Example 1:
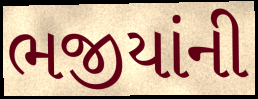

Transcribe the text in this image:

ભજીયાંની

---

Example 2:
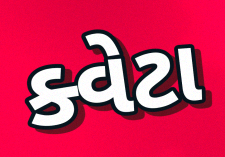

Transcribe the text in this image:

ક્વેટા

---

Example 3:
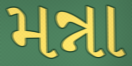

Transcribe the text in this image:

મન્ના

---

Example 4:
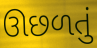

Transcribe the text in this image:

ઊછળતું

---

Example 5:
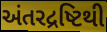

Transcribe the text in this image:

અંતરદ્રષ્ટિથી